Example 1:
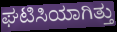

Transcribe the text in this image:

ಘಟಿಸಿಯಾಗಿತ್ತು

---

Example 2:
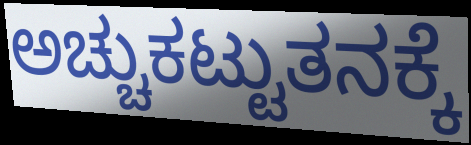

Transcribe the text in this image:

ಅಚ್ಚುಕಟ್ಟುತನಕ್ಕೆ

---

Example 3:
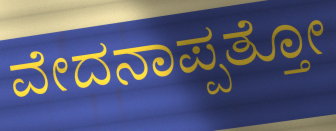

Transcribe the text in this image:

ವೇದನಾಪ್ಪತ್ತೋ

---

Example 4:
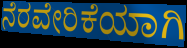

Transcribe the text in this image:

ನೆರವೇರಿಕೆಯಾಗಿ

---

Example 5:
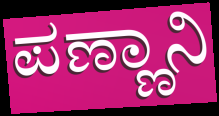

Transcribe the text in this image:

ಪಣ್ಣಾನಿ